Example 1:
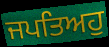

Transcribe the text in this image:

ਜਪਤਿਅਹੁ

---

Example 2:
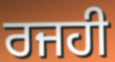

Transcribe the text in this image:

ਰਜਹੀ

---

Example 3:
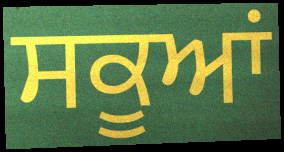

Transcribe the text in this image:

ਸਕੂਆਂ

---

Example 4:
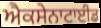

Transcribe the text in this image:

ਐਕਸੇਨਾਟਾਈਡ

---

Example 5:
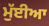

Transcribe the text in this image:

ਮੁੱਈਆ